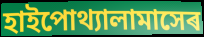
হাইপোথ্যালামাসেৰ